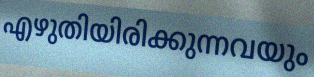
എഴുതിയിരിക്കുന്നവയും